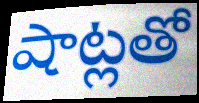
షాట్లతో